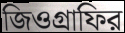
জিওগ্রাফির